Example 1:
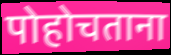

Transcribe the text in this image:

पोहोचताना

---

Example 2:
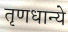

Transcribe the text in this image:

तृणधान्ये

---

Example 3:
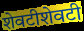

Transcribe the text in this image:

शेवटीशेवटी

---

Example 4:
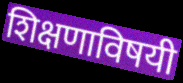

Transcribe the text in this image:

शिक्षणाविषयी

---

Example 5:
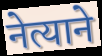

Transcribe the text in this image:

नेत्याने